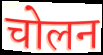
चोलन